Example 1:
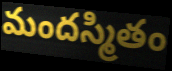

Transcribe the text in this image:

మందస్మితం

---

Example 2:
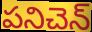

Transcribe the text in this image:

పనిచెన్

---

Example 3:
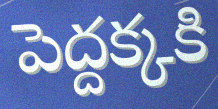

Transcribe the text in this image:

పెద్దక్కకి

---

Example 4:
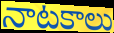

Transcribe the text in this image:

నాటకాలు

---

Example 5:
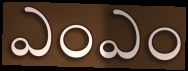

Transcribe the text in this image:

ఎంఎం